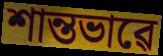
শান্তভাৱে